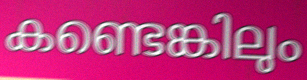
കണ്ടെങ്കിലും